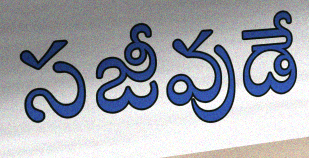
సజీవుడే